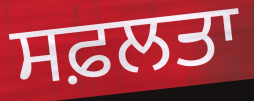
ਸਫ਼ਲਤਾ